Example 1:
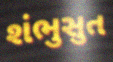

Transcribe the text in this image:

શંભુસુત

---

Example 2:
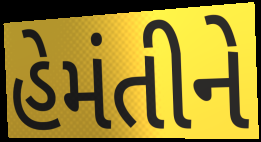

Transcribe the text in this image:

હેમંતીને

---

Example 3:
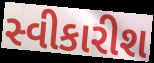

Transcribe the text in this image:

સ્વીકારીશ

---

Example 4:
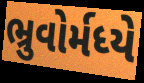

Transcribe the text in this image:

ભ્રુવોર્મધ્યે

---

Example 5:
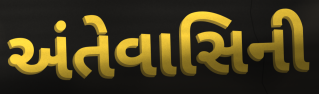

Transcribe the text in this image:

અંતેવાસિની